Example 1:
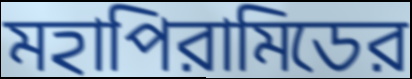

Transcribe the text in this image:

মহাপিরামিডের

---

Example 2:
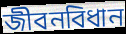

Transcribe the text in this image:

জীবনবিধান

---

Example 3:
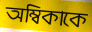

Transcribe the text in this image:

অম্বিকাকে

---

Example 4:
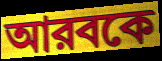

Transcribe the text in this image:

আরবকে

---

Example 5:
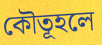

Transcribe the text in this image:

কৌতূহলে